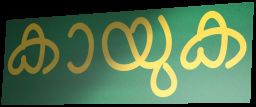
കായുക